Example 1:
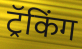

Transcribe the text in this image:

ट्रॅकिंग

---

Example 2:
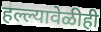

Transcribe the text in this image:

हल्ल्यावेळीही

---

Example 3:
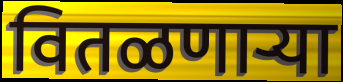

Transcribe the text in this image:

वितळणाऱ्या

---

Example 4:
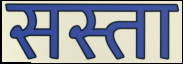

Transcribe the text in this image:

सस्ता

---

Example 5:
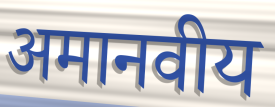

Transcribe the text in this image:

अमानवीय